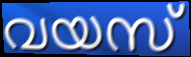
വയസ്